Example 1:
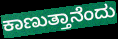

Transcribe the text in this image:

ಕಾಣುತ್ತಾನೆಂದು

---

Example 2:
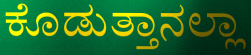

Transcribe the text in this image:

ಕೊಡುತ್ತಾನಲ್ಲಾ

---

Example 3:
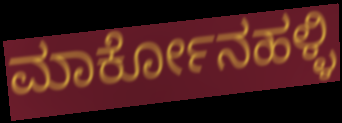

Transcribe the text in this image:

ಮಾರ್ಕೋನಹಳ್ಳಿ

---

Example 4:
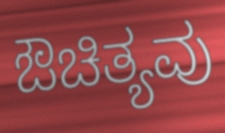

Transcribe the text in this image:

ಔಚಿತ್ಯವು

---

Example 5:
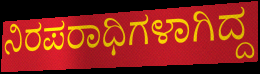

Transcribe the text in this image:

ನಿರಪರಾಧಿಗಳಾಗಿದ್ದ